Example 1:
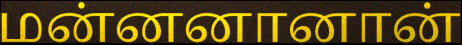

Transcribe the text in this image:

மன்னனானான்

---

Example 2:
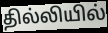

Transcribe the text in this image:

தில்லியில்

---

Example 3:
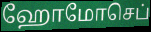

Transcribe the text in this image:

ஹோமோசெப்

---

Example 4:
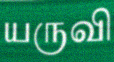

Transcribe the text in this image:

யருவி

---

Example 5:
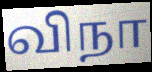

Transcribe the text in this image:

விநா